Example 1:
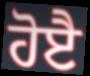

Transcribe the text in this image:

ਹੋੲੈ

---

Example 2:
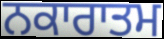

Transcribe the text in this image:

ਨਕਾਰਾਤਮ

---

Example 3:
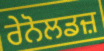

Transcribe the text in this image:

ਰੇਨੋਲਡਜ਼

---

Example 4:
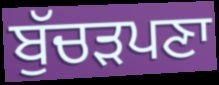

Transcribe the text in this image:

ਬੁੱਚੜਪਣਾ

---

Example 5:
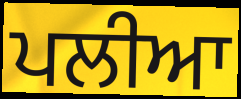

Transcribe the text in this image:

ਪਲੀਆ